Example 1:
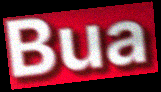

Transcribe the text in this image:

Bua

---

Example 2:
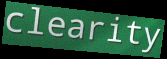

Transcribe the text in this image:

clearity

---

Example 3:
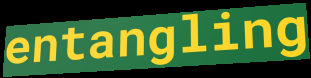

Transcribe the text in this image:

entangling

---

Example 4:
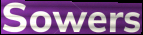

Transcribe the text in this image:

Sowers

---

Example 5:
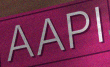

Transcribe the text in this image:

AAPI